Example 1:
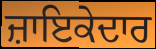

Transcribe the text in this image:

ਜ਼ਾਇਕੇਦਾਰ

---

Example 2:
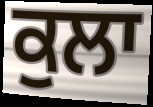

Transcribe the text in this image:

ਕੁਲਾ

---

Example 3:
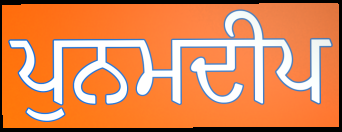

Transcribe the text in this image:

ਪੁਨਮਦੀਪ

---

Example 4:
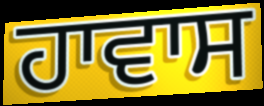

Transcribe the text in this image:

ਹਾਵਾਸ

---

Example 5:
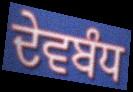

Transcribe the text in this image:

ਦੇਵਬੰਧ